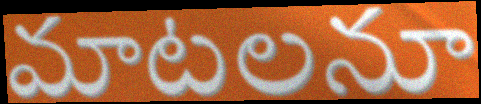
మాటలనూ